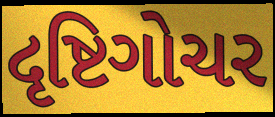
દૃષ્ટિગોચર